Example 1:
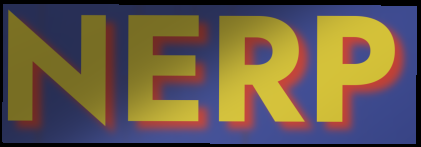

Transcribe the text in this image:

NERP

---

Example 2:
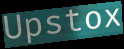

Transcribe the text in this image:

Upstox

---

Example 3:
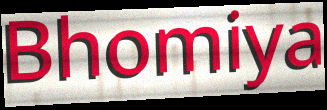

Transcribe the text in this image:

Bhomiya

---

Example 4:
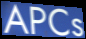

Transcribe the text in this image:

APCs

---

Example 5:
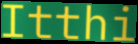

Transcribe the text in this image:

Itthi